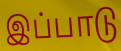
இப்பாடு